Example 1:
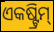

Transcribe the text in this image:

ଏକଷ୍ଟ୍ରିମ୍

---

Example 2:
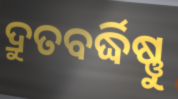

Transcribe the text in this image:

ଦ୍ରୁତବର୍ଦ୍ଧିଷ୍ଣୁ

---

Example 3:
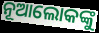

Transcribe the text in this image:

ନୂଆଲୋକଙ୍କୁ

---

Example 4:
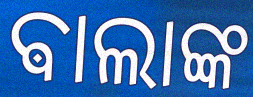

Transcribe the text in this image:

ଵାଲାଙ୍କ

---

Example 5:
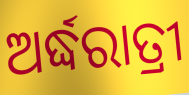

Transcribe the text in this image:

ଅର୍ଦ୍ଧରାତ୍ରୀ